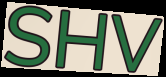
SHV